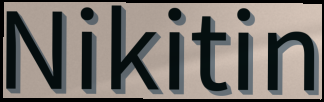
Nikitin